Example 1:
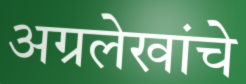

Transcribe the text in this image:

अग्रलेखांचे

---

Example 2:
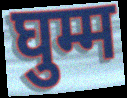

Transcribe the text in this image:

घुम्म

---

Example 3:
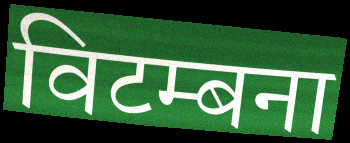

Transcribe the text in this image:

विटम्बना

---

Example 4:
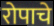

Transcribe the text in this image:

रोपाचे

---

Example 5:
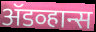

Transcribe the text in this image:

ॲडव्हान्स